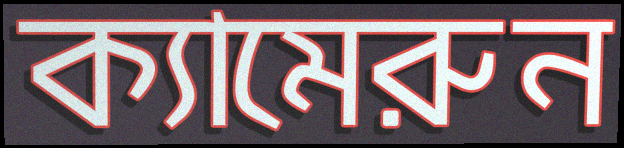
ক্যামেরুন